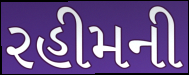
રહીમની